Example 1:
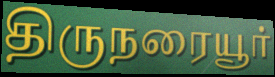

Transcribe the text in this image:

திருநரையூர்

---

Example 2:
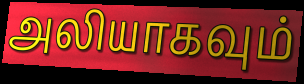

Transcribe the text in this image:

அலியாகவும்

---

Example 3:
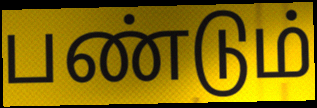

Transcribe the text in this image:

பண்டும்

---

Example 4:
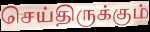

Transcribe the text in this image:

செய்திருக்கும்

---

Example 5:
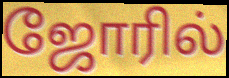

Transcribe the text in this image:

ஜோரில்